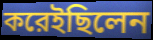
করেইছিলেন